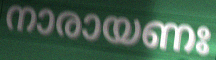
നാരായണഃ